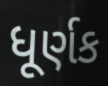
ધૂર્ણક